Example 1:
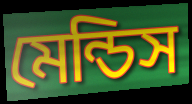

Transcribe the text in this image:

মেন্ডিস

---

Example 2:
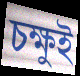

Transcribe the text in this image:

চক্ষুই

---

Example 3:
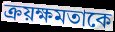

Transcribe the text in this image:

ক্রয়ক্ষমতাকে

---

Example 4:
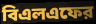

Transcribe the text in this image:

বিএলএফের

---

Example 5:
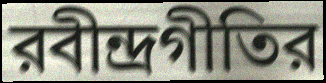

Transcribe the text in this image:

রবীন্দ্রগীতির